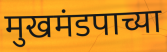
मुखमंडपाच्या